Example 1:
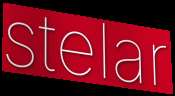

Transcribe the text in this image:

stelar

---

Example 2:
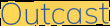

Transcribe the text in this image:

Outcast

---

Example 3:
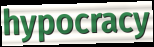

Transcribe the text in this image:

hypocracy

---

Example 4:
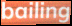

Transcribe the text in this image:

bailing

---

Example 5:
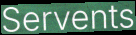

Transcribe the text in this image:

Servents